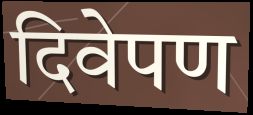
दिवेपण